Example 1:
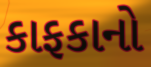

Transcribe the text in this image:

કાફકાનો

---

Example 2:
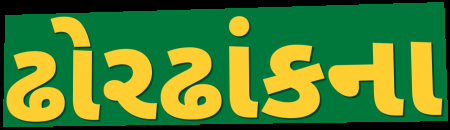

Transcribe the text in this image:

ઢોરઢાંકના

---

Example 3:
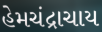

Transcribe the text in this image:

હેમચંદ્રાચાય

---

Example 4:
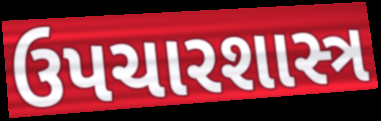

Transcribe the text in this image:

ઉપચારશાસ્ત્ર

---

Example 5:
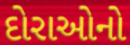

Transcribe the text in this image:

દોરાઓનો